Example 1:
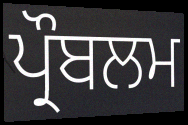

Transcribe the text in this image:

ਪ੍ਰੌਬਲਮ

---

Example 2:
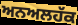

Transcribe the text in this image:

ਅਨਅਲਹੱਕ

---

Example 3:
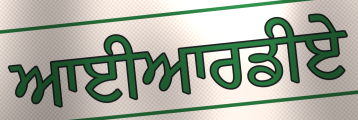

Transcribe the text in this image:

ਆਈਆਰਡੀਏ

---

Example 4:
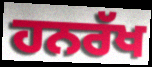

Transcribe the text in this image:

ਹਨਰੱਖ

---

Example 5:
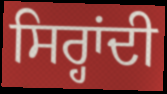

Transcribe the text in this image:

ਸਿਰ੍ਹਾਂਦੀ